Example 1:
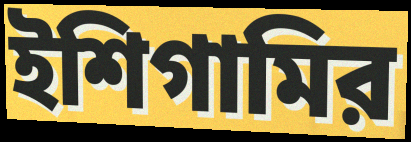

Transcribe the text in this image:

ইশিগামির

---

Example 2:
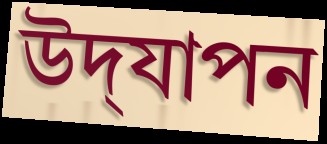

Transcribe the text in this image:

উদ্‌যাপন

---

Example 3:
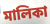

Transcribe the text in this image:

মালিকা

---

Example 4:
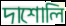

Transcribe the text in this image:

দাশোলি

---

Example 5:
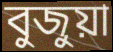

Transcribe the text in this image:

বুজুয়া